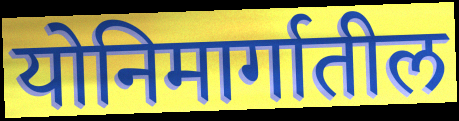
योनिमार्गातील